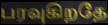
பரவுகிறதே